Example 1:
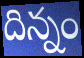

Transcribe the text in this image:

దిన్నం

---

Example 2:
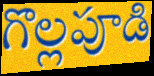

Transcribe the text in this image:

గొల్లపూడి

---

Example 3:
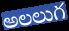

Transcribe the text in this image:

అలలుగ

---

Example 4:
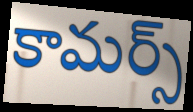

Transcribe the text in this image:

కామర్స్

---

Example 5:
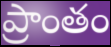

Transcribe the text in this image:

ప్రాంతం